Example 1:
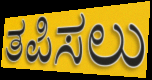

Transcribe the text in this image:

ತಪಿಸಲು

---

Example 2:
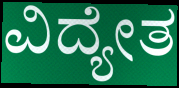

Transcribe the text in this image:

ವಿದ್ಯೇತ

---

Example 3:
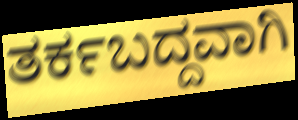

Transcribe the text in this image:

ತರ್ಕಬದ್ದವಾಗಿ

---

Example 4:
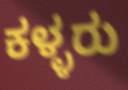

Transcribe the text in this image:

ಕಳ್ಳರು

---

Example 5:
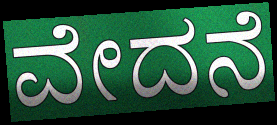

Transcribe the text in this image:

ವೇದನೆ